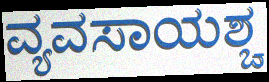
ವ್ಯವಸಾಯಶ್ಚ